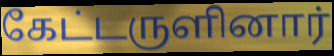
கேட்டருளினார்